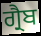
ਗ੍ਰੈਬ